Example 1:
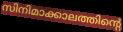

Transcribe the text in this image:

സിനിമാക്കാലത്തിന്റെ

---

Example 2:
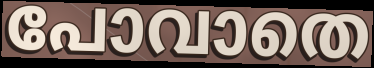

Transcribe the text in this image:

പോവാതെ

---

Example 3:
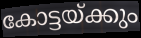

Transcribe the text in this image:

കോട്ടയ്ക്കും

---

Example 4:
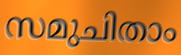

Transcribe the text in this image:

സമുചിതാം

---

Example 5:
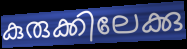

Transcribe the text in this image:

കുരുക്കിലേക്കു